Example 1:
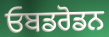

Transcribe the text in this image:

ਓਬਡਰੋਡਨ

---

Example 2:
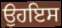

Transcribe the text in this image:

ਉਹਇਸ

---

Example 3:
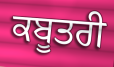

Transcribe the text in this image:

ਕਬੂਤਰੀ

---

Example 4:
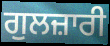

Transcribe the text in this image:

ਗੁਲਜ਼ਾਰੀ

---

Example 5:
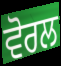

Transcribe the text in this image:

ਵੋਰਲ